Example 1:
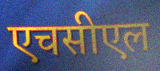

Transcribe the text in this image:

एचसीएल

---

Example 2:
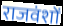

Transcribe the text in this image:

राजवंशों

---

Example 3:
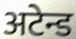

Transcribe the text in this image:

अटेन्ड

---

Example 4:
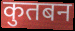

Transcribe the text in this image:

कुतबन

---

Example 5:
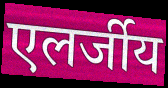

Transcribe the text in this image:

एलर्जीय